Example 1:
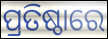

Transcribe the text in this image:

ପ୍ରତିଷ୍ଠାରେ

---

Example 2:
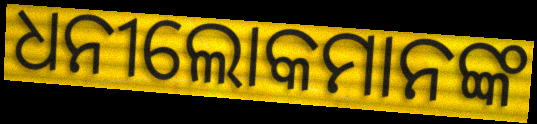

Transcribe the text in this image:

ଧନୀଲୋକମାନଙ୍କ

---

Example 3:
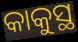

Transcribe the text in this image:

କାକୁସ୍ଥ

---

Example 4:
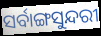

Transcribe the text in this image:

ସର୍ବାଙ୍ଗସୁନ୍ଦରୀ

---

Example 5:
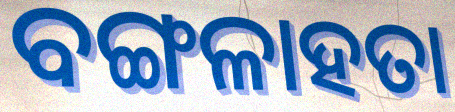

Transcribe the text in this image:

ବଙ୍ଗଳାହତା